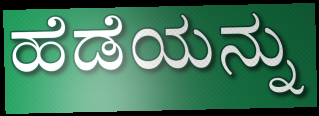
ಹೆಡೆಯನ್ನು